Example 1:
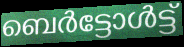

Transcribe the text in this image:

ബെർട്ടോൾട്ട്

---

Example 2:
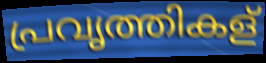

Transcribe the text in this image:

പ്രവൃത്തികള്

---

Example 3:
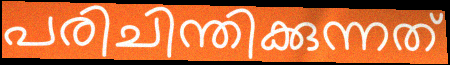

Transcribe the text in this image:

പരിചിന്തിക്കുന്നത്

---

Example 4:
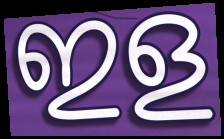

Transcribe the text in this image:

ഇള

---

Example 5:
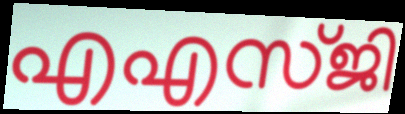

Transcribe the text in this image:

എഎസ്ജി